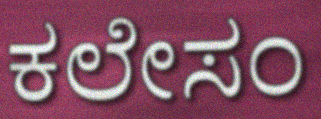
ಕಲೇಸಂ